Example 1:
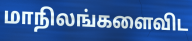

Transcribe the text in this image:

மாநிலங்களைவிட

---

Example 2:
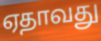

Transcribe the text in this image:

ஏதாவது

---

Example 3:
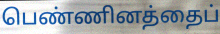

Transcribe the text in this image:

பெண்ணினத்தைப்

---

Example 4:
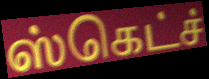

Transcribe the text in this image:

ஸ்கெட்ச்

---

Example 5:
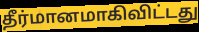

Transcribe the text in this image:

தீர்மானமாகிவிட்டது